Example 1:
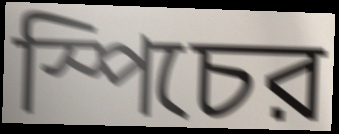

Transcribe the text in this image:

স্পিচের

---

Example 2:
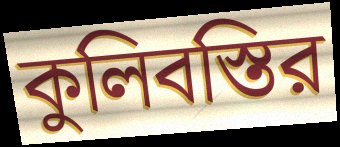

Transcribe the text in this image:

কুলিবস্তির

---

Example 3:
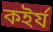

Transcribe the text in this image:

কইর্য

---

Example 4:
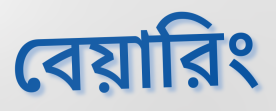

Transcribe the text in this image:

বেয়ারিং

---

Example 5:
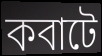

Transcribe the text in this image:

কবাটে